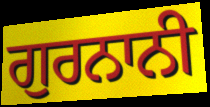
ਗੁਰਨਾਨੀ